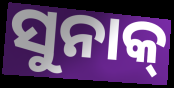
ସୁନାକ୍